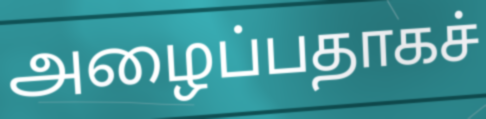
அழைப்பதாகச்